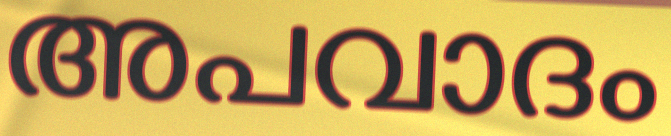
അപവാദം